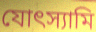
যোৎস্যামি